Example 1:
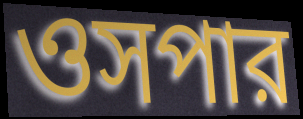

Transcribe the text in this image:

ওসপার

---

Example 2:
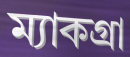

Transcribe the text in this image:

ম্যাকগ্রা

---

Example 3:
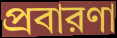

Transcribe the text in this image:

প্রবারণা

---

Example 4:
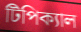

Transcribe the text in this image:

টিপিক্যাল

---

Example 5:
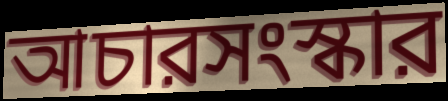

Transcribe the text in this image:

আচারসংস্কার